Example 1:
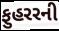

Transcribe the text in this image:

ફુહરરની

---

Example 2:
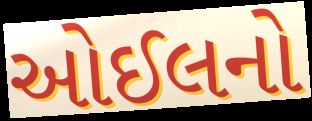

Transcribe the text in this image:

ઓઈલનો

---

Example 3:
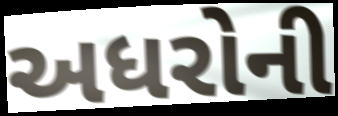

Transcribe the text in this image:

અધરોની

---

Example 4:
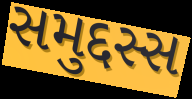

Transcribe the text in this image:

સમુદ્દસ્સ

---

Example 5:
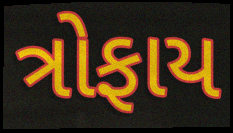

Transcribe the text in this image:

ત્રોફાય